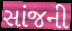
સાંજની